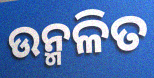
ଉନ୍ମଳିତ